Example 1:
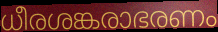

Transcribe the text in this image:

ധീരശങ്കരാഭരണം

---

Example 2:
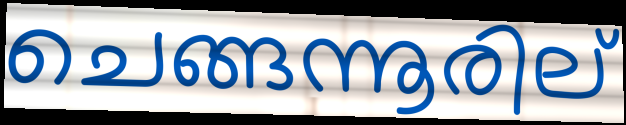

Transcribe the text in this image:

ചെങ്ങന്നൂരില്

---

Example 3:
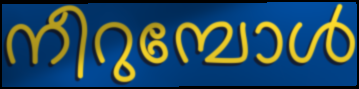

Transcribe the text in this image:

നീറുമ്പോൾ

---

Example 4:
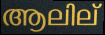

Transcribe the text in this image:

ആലില്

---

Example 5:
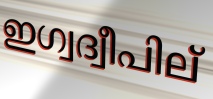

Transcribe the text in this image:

ഇഗ്വദ്വീപില്